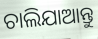
ଚାଲିଯାଆନ୍ତୁ